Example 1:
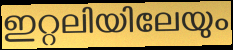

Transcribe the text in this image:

ഇറ്റലിയിലേയും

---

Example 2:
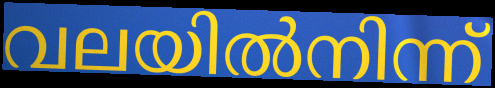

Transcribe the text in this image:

വലയിൽനിന്ന്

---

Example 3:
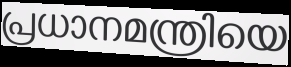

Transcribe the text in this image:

പ്രധാനമന്ത്രിയെ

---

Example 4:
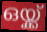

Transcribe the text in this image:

ഒയ്ക്ക്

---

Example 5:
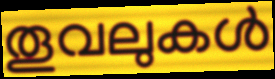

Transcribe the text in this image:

തൂവലുകൾ